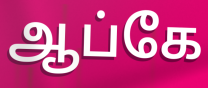
ஆப்கே